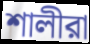
শালীরা